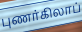
புணர்கிலாப்